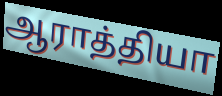
ஆராத்தியா